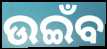
ଉଇଁବ